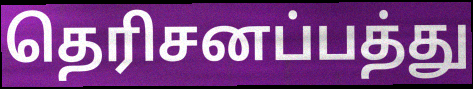
தெரிசனப்பத்து